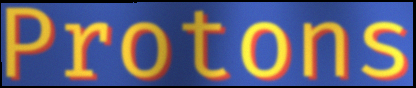
Protons